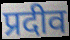
प्रदीव